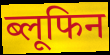
ब्लूफिन